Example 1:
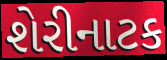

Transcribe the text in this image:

શેરીનાટક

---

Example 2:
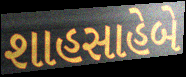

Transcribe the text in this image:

શાહસાહેબે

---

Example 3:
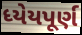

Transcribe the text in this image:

ધ્યેયપૂર્ણ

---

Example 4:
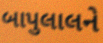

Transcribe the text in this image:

બાપુલાલને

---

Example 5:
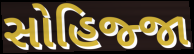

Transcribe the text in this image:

સોહિજ્જા